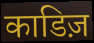
काडिज़